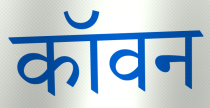
कॉवन